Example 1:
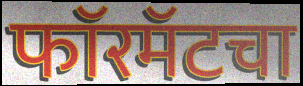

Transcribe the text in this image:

फॉरमॅटचा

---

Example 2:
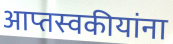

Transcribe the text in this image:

आप्तस्वकीयांना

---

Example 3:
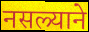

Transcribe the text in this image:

नसल्याने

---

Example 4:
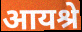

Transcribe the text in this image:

आयश्रे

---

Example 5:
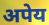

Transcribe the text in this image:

अपेय